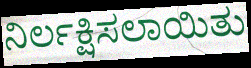
ನಿರ್ಲಕ್ಷಿಸಲಾಯಿತು